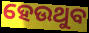
ହେଉଥୁବ